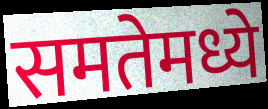
समतेमध्ये